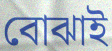
বোঝাই